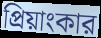
প্রিয়াংকার